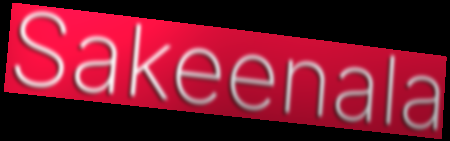
Sakeenala